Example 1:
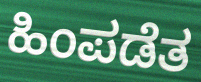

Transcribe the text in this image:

ಹಿಂಪಡೆತ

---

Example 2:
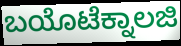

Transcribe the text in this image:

ಬಯೊಟೆಕ್ನಾಲಜಿ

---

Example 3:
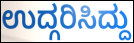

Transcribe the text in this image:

ಉದ್ಗರಿಸಿದ್ದು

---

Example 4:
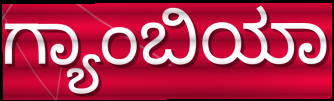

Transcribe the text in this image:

ಗ್ಯಾಂಬಿಯಾ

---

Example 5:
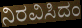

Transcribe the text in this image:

ನಿರವಿಸಿದಂ